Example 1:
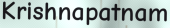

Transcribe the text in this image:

Krishnapatnam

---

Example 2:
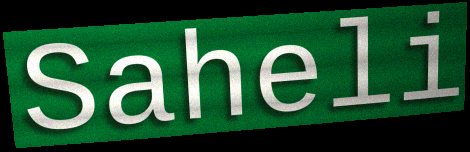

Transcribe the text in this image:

Saheli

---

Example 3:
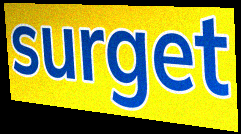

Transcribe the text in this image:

surget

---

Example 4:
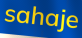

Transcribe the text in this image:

sahaje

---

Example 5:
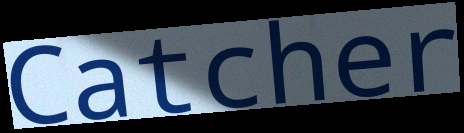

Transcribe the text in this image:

Catcher